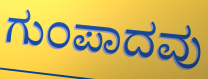
ಗುಂಪಾದವು